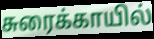
சுரைக்காயில்